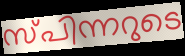
സ്പിന്നറുടെ